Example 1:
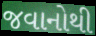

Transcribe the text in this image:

જવાનોથી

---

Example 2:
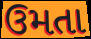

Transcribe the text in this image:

ઉમતા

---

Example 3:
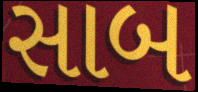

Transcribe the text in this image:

સાબ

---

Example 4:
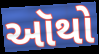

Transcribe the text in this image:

ઑથો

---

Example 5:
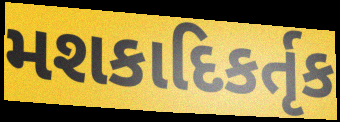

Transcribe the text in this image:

મશકાદિકર્તૃક